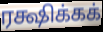
ரக்ஷிக்கக்